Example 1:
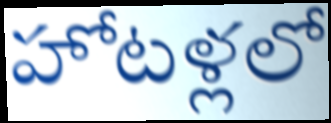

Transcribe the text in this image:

హోటళ్లలో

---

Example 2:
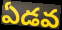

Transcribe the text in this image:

ఏడవ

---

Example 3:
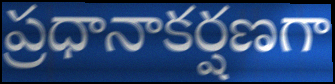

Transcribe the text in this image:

ప్రధానాకర్షణగా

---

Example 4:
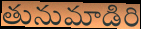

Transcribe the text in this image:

తునుమాడిరి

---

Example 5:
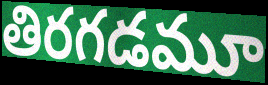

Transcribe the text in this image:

తిరగడమూ